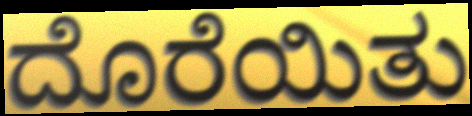
ದೊರೆಯಿತು